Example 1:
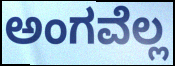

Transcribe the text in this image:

ಅಂಗವೆಲ್ಲ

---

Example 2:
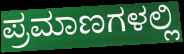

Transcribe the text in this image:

ಪ್ರಮಾಣಗಳಲ್ಲಿ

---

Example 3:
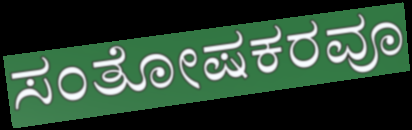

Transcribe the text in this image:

ಸಂತೋಷಕರವೂ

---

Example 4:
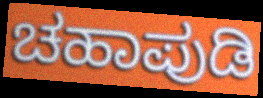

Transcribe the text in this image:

ಚಹಾಪುಡಿ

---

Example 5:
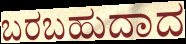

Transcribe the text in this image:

ಬರಬಹುದಾದ